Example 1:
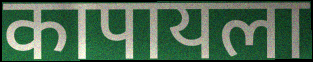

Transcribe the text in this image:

कापायला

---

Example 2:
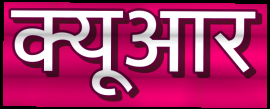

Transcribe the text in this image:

क्यूआर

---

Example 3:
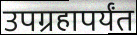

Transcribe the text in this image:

उपग्रहापर्यंत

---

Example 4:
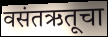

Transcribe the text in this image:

वसंतऋतूचा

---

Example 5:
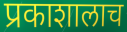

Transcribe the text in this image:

प्रकाशालाच